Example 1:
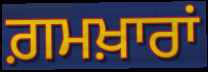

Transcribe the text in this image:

ਗ਼ਮਖ਼ਾਰਾਂ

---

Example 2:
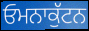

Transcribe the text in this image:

ਓਮਨਾਕੁੱਟਨ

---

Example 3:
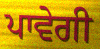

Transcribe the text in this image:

ਪਾਵੇਗੀ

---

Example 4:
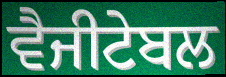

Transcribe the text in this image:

ਵੈਜੀਟੇਬਲ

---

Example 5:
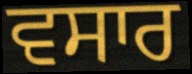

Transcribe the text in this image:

ਵਸਾਰ